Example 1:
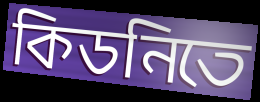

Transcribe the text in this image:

কিডনিতে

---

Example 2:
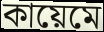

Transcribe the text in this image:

কায়েমে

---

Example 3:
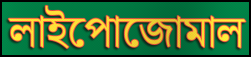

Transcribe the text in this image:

লাইপোজোমাল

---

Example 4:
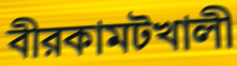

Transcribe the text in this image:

বীরকামটখালী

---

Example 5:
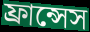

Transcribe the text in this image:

ফ্রান্সেস